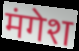
मंगेश